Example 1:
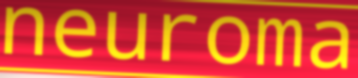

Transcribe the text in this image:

neuroma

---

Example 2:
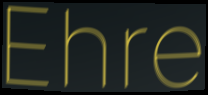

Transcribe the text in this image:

Ehre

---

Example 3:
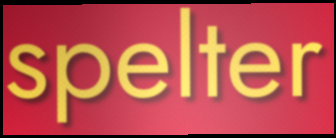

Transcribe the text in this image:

spelter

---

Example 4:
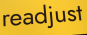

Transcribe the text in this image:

readjust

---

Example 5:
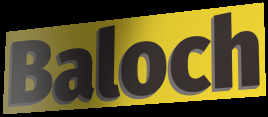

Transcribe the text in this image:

Baloch